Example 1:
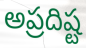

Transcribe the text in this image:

అప్రదిష్ట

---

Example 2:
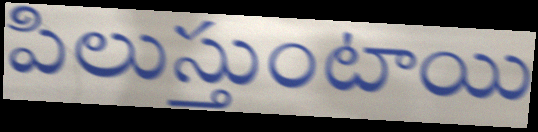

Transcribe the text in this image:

పిలుస్తుంటాయి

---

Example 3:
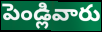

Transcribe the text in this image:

పెండ్లివారు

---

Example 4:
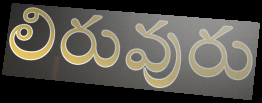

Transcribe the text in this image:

లిరువురు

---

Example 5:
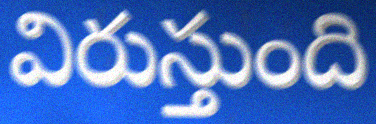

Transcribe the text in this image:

విరుస్తుంది